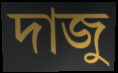
দাজু